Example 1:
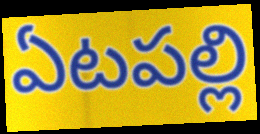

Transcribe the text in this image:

ఏటపల్లి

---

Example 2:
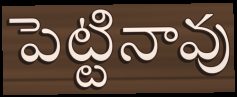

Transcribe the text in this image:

పెట్టినావు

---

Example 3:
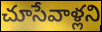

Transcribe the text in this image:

చూసేవాళ్లని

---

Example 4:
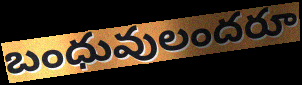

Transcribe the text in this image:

బంధువులందరూ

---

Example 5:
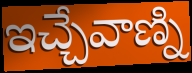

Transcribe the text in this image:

ఇచ్చేవాణ్ని